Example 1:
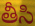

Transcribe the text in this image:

తీసి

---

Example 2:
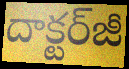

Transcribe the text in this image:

దాక్టర్‌జీ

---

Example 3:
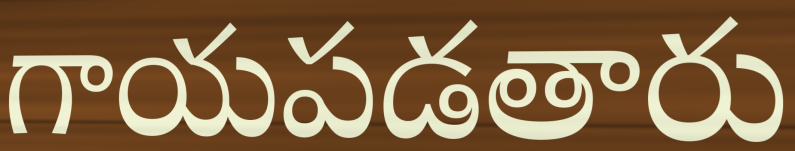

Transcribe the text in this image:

గాయపడతారు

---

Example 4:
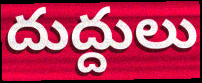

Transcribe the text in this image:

దుద్దులు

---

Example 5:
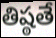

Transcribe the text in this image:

తిష్ఠతే